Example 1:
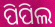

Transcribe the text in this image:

ପିପିଲ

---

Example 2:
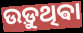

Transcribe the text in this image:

ଉଡ଼ୁଥିଵା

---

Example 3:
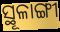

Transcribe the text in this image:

ସ୍ଥୂଳାଙ୍ଗୀ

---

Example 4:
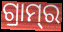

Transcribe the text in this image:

ଗ୍ରାମ୍‌ର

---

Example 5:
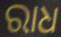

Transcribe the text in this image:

ରାଧ